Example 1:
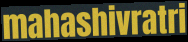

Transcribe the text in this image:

mahashivratri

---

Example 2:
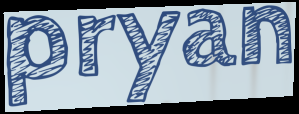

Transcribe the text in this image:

pryan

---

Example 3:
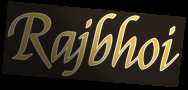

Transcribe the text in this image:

Rajbhoi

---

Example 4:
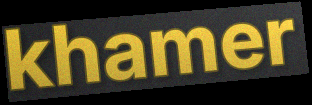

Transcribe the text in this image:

khamer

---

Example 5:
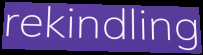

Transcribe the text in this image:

rekindling